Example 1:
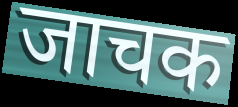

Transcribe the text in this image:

जाचक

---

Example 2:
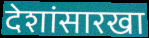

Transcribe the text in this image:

देशांसारखा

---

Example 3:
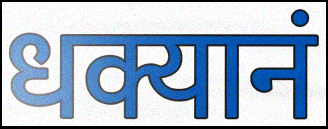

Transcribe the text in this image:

धक्यानं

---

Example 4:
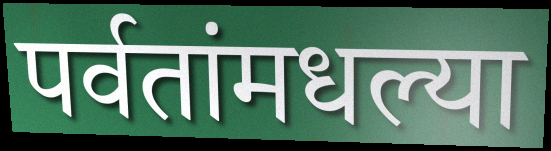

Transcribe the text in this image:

पर्वतांमधल्या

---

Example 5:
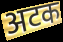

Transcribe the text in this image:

अटक